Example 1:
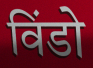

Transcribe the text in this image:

विंडो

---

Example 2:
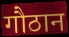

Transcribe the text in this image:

गौठान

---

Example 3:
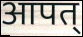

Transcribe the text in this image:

आपत्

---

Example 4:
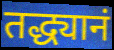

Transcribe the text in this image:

तद्ध्यानं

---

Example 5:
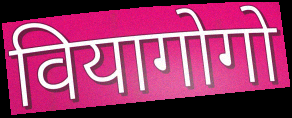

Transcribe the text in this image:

वियागोगो